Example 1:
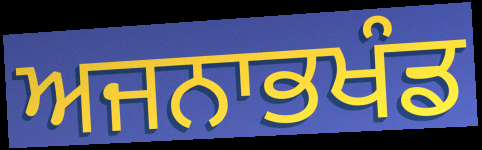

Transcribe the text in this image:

ਅਜਨਾਭਖੰਡ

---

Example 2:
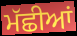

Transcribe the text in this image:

ਮੱਛੀਆਂ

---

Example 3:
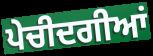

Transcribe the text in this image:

ਪੇਚੀਦਗੀਆਂ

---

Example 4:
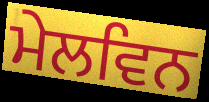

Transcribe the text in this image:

ਮੇਲਵਿਨ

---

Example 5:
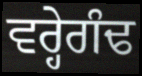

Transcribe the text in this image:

ਵਰ੍ਹੇਗੰਢ